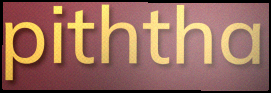
piththa